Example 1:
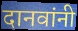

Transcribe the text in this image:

दानवांनी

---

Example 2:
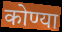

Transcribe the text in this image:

कोण्या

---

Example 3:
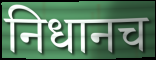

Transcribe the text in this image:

निधानच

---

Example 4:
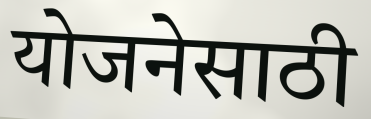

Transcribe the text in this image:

योजनेसाठी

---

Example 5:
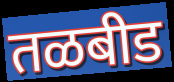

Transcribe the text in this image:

तळबीड